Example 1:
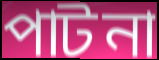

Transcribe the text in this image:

পাটনা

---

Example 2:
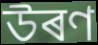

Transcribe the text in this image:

উৰণ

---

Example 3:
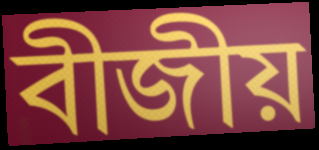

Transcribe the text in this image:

বীজীয়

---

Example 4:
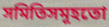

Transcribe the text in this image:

সমিতিসমূহতো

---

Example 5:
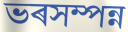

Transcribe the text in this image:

ভৰসম্পন্ন